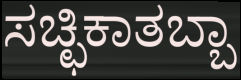
ಸಚ್ಛಿಕಾತಬ್ಬಾ